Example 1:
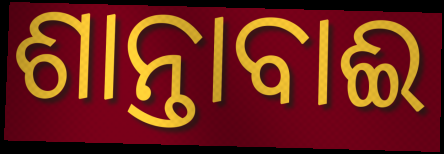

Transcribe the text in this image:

ଶାନ୍ତାବାଈ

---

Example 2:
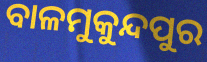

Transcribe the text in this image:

ବାଳମୁକୁନ୍ଦପୁର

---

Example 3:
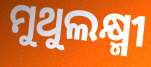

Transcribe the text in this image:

ମୁଥୁଲକ୍ଷ୍ମୀ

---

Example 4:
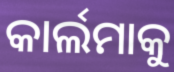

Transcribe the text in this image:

କାର୍ଲମାକୁ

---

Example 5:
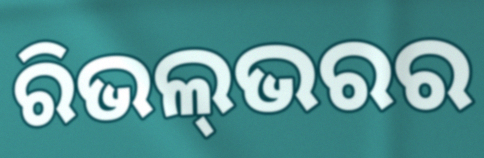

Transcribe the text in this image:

ରିଭଲ୍‍ଭରର